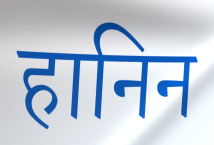
हानिन